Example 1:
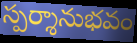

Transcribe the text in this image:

స్పర్శానుభవం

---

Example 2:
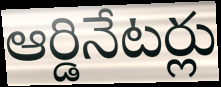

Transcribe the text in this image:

ఆర్డినేటర్లు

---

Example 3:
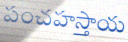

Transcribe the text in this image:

పంచహస్తాయ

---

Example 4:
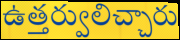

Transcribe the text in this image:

ఉత్తర్వులిచ్చారు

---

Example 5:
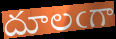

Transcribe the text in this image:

దూలఁగా